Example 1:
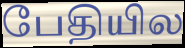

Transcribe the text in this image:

பேதியில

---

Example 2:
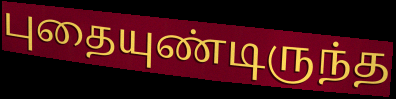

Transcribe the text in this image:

புதையுண்டிருந்த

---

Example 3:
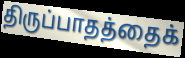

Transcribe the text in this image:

திருப்பாதத்தைக்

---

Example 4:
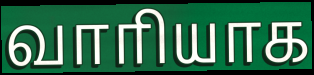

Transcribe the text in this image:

வாரியாக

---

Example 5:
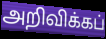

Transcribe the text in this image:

அறிவிக்கப்